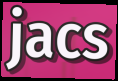
jacs